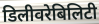
डिलीवरेबिलिटी